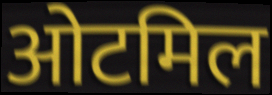
ओटमिल